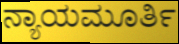
ನ್ಯಾಯಮೂರ್ತಿ